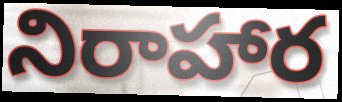
నిరాహార